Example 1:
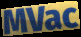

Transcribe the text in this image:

MVac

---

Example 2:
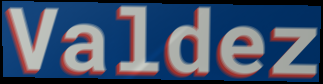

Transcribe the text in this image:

Valdez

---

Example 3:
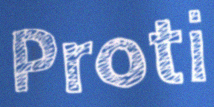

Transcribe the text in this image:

Proti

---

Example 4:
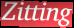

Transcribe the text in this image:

Zitting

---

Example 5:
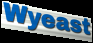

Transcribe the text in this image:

Wyeast